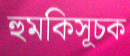
হুমকিসূচক